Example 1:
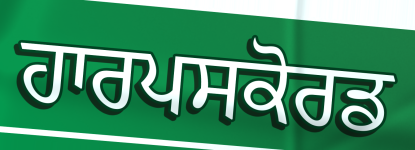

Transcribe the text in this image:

ਹਾਰਪਸਕੋਰਡ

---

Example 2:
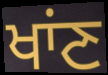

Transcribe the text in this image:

ਖਾਂਣ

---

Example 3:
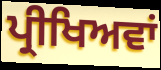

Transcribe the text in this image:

ਪ੍ਰੀਖਿਅਵਾਂ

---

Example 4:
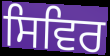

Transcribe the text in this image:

ਸਿਵਿਰ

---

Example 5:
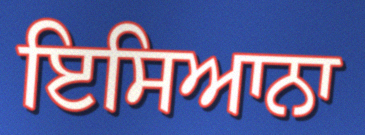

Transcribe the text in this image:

ਇਸਿਆਨਾ